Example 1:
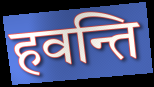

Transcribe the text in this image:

हवन्ति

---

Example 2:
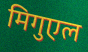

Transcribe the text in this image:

मिगुएल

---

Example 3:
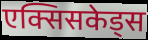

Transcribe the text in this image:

एक्सिसकेड्स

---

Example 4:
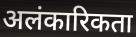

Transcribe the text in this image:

अलंकारिकता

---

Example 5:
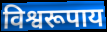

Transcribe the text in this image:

विश्वरूपाय